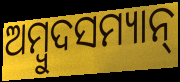
ଅମ୍ୱୁଦସମ୍ୟାନ୍